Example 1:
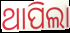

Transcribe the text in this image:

ଥାପିଲା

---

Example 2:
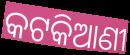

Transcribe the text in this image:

କଟକିଆଣୀ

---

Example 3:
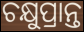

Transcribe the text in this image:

ଚକ୍ଷୁପ୍ରାନ୍ତ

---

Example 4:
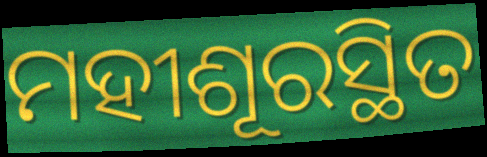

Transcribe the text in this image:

ମହୀଶୂରସ୍ଥିତ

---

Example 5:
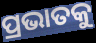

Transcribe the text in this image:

ପ୍ରଭାତକୁ